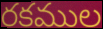
రకముల